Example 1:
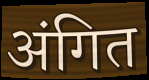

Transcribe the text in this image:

अंगित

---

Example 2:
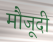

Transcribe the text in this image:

मौजूदी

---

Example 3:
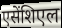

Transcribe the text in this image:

एसेंशिएल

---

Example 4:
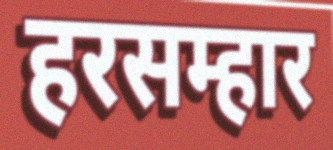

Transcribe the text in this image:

हरसम्हार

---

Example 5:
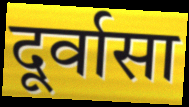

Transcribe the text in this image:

दूर्वासा